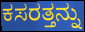
ಕಸರತ್ತನ್ನು